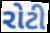
રોટી